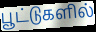
பூட்டுகளில்